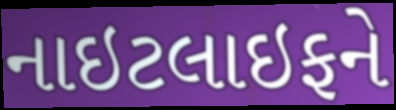
નાઇટલાઇફને